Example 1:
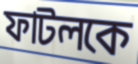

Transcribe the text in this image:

ফাটলকে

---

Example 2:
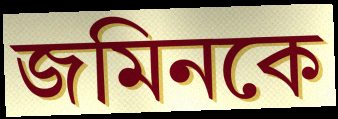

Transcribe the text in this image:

জমিনকে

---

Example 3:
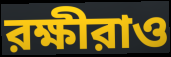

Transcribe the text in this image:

রক্ষীরাও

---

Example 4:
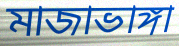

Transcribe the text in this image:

মাজাভাঙ্গা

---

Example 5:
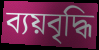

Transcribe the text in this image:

ব্যয়বৃদ্ধি